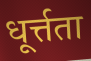
धूर्त्तता